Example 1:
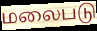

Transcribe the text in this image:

மலைபடு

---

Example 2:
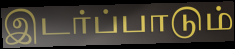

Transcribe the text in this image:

இடர்ப்பாடும்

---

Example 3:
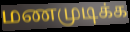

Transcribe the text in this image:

மணமுடிக்க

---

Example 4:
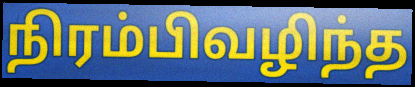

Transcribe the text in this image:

நிரம்பிவழிந்த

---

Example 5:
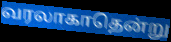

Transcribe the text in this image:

வரலாகாதென்று